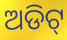
ଅଡିଟ୍